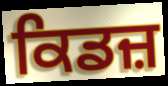
ਕਿਡਜ਼